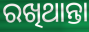
ରଖିଥାନ୍ତା